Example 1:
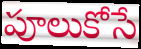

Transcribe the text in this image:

పూలుకోసే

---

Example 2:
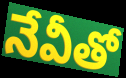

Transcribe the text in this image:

నేవీతో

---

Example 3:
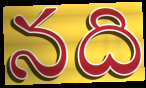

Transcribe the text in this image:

నది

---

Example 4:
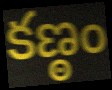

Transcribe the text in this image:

కణ్ఠం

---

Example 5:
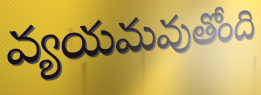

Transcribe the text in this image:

వ్యయమవుతోంది